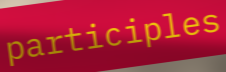
participles